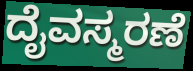
ದೈವಸ್ಮರಣೆ